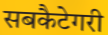
सबकैटेगरी